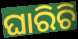
ଘାରିଚି